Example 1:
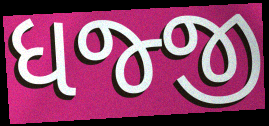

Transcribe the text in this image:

ધજ્જી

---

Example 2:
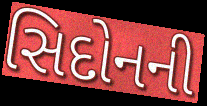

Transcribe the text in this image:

સિદોનની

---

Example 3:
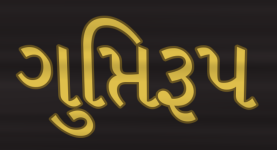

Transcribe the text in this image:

ગુપ્તિરૂપ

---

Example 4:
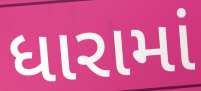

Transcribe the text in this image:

ધારામાં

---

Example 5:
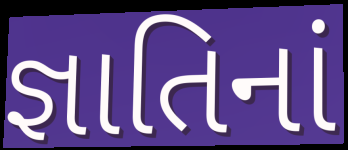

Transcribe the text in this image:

જ્ઞાતિનાં